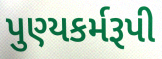
પુણ્યકર્મરૂપી